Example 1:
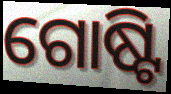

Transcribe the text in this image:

ଗୋଷ୍ଟି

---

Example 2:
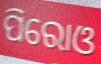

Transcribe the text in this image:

ପିରୋଓ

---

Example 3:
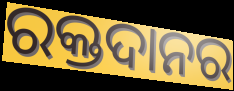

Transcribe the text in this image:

ରକ୍ତଦାନର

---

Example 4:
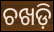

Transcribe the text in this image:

ଚଖଡ଼ି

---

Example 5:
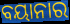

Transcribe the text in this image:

ବୟାନାର